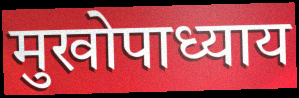
मुखोपाध्‍याय